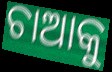
ଚାଆକୁ